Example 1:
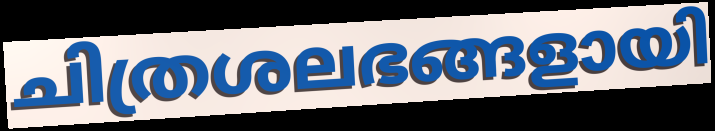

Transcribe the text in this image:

ചിത്രശലഭങ്ങളായി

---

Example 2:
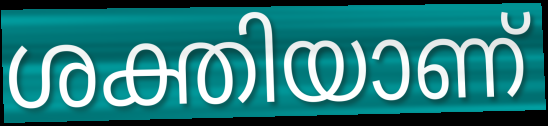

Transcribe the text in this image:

ശക്തിയാണ്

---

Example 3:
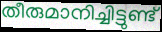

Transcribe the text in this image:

തീരുമാനിച്ചിട്ടുണ്ട്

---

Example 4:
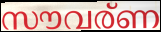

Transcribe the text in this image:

സൗവര്ണ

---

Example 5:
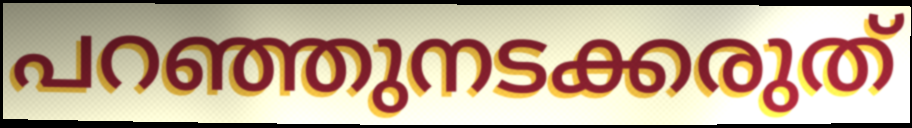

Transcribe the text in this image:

പറഞ്ഞുനടക്കരുത്